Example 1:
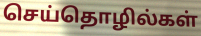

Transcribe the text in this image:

செய்தொழில்கள்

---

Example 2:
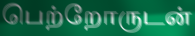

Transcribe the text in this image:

பெற்றோருடன்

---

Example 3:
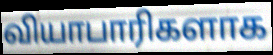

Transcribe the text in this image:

வியாபாரிகளாக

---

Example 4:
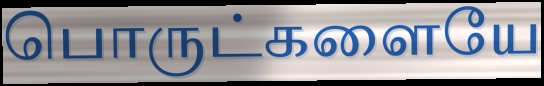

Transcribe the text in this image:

பொருட்களையே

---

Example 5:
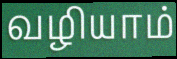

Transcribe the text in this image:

வழியாம்